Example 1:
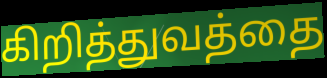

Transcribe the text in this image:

கிறித்துவத்தை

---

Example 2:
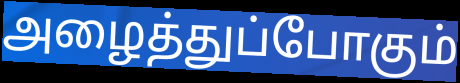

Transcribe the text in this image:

அழைத்துப்போகும்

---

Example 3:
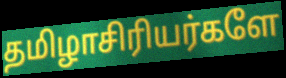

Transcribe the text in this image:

தமிழாசிரியர்களே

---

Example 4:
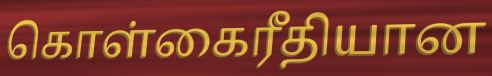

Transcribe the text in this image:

கொள்கைரீதியான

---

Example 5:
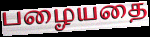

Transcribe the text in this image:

பழையதை